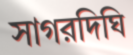
সাগরদিঘি